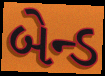
બેન્ડ